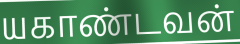
யகாண்டவன்